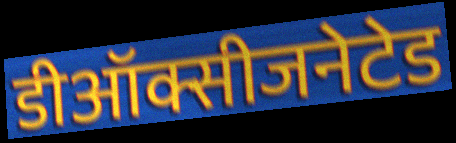
डीऑक्सीजनेटेड